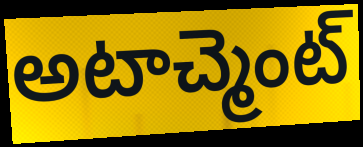
అటాచ్మెంట్